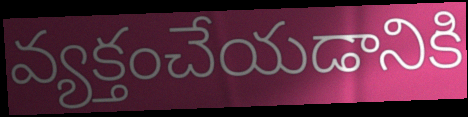
వ్యక్తంచేయడానికి